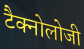
टैक्नोलोजी